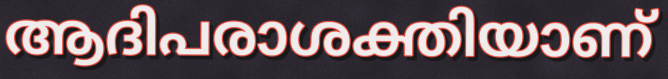
ആദിപരാശക്തിയാണ്